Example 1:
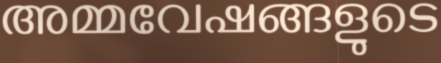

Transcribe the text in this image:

അമ്മവേഷങ്ങളുടെ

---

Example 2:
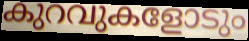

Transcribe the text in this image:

കുറവുകളോടും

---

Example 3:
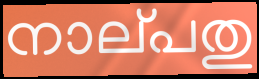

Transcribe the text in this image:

നാല്‌പതു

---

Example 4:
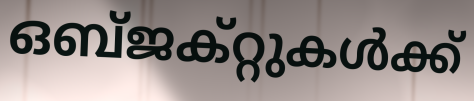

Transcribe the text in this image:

ഒബ്ജക്റ്റുകൾക്ക്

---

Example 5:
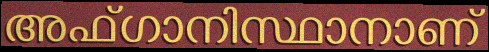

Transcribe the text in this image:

അഫ്ഗാനിസ്ഥാനാണ്